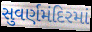
સુવર્ણમંદિરમાં